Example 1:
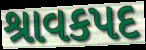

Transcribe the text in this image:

શ્રાવકપદ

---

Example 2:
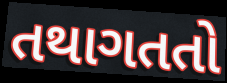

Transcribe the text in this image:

તથાગતતો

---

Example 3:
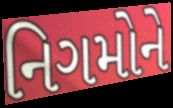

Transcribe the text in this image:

નિગમોને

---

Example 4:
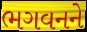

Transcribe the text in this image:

ભગવનને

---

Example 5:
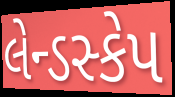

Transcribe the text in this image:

લેન્ડસ્કેપ